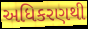
અધિકરણથી